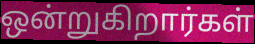
ஒன்றுகிறார்கள்